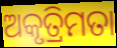
ଅକୃତ୍ରିମତା